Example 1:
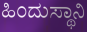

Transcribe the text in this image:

ಹಿಂದುಸ್ಥಾನಿ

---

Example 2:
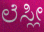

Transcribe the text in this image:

ಲೆಸ್ಲೀ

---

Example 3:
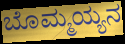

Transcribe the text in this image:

ಬೊಮ್ಮಯ್ಯನ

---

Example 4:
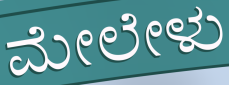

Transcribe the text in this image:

ಮೇಲೇಳು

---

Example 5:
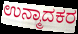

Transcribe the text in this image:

ಉನ್ಮಾದಕರ